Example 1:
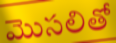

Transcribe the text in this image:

మొసలితో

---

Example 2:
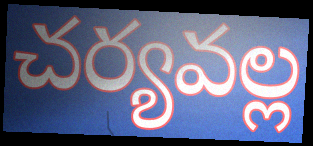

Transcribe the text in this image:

చర్యవల్ల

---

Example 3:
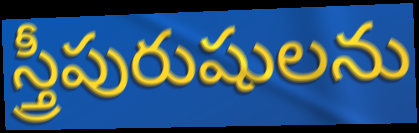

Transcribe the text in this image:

స్త్రీపురుషులను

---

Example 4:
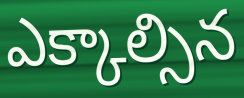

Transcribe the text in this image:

ఎక్కాల్సిన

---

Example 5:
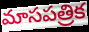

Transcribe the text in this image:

మాసపత్రిక